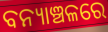
ବନ୍ୟାଞ୍ଚଳରେ